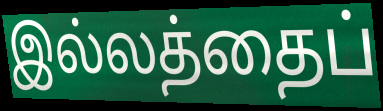
இல்லத்தைப்